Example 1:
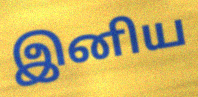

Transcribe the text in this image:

இனிய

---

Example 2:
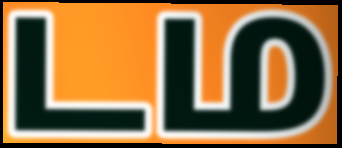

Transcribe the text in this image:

டம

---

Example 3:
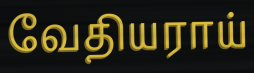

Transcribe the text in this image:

வேதியராய்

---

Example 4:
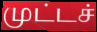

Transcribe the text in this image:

முட்டச்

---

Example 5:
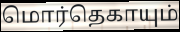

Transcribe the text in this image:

மொர்தெகாயும்